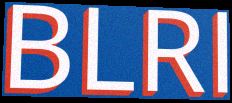
BLRI